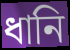
ধানি